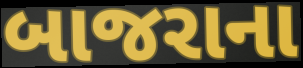
બાજરાના